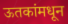
ऊतकांमधून